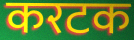
करटक